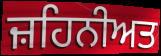
ਜ਼ਹਿਨੀਅਤ